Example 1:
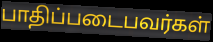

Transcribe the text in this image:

பாதிப்படைபவர்கள்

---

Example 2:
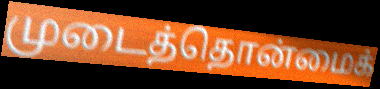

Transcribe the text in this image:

முடைத்தொன்மைக்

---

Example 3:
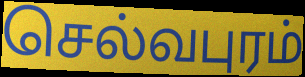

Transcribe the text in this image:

செல்வபுரம்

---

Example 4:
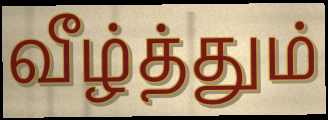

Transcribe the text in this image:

வீழ்த்தும்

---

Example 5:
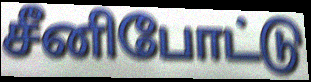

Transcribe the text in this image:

சீனிபோட்டு